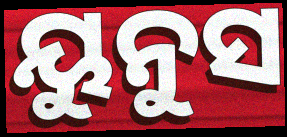
ୟୁନୁସ